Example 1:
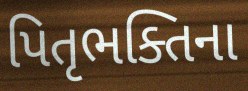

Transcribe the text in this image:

પિતૃભક્તિના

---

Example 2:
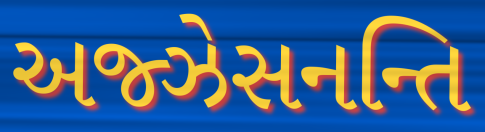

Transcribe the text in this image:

અજ્ઝેસનન્તિ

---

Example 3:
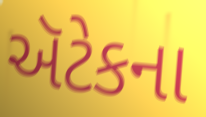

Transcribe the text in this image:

ઍટેકના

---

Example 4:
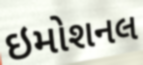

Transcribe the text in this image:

ઇમોશનલ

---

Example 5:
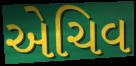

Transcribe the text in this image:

એચિવ